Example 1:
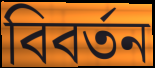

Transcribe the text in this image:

বিবৰ্তন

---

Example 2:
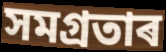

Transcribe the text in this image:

সমগ্ৰতাৰ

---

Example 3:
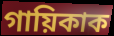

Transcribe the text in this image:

গায়িকাক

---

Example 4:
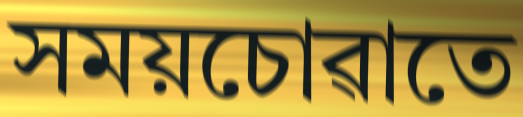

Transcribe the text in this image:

সময়চোৱাতে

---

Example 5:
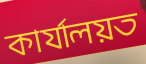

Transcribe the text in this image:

কাৰ্যালয়ত